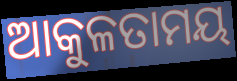
ଆକୁଳତାମୟ